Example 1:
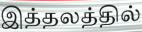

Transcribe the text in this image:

இத்தலத்தில்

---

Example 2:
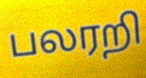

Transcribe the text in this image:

பலரறி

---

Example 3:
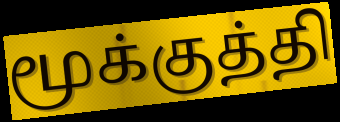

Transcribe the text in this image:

மூக்குத்தி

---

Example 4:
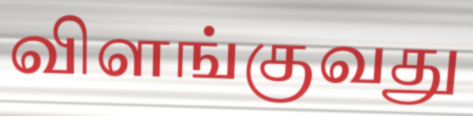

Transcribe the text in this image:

விளங்குவது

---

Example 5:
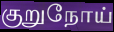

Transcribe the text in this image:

குறுநோய்